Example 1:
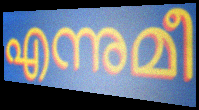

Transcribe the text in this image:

എന്നുമീ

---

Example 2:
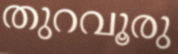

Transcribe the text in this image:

തുറവൂരു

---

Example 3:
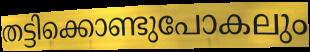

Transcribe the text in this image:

തട്ടിക്കൊണ്ടുപോകലും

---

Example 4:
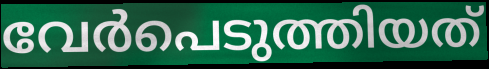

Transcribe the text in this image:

വേർപെടുത്തിയത്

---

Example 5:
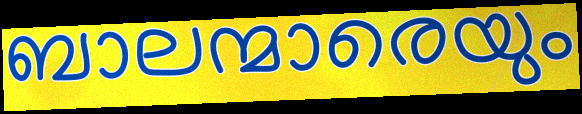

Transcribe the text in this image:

ബാലന്മാരെയും